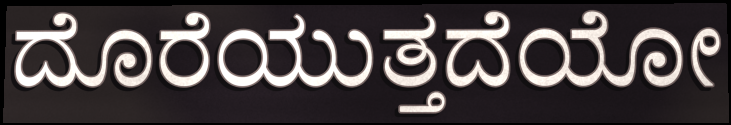
ದೊರೆಯುತ್ತದೆಯೋ